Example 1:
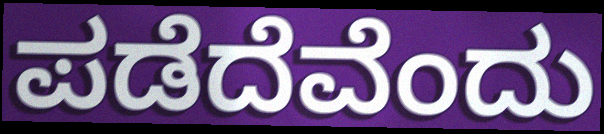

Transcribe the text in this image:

ಪಡೆದೆವೆಂದು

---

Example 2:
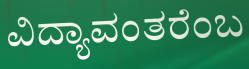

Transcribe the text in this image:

ವಿದ್ಯಾವಂತರೆಂಬ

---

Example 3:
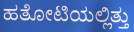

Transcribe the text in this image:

ಹತೋಟಿಯಲ್ಲಿತ್ತು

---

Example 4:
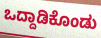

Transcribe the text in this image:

ಒದ್ದಾಡಿಕೊಂಡು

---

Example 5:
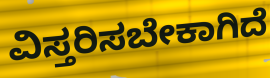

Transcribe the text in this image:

ವಿಸ್ತರಿಸಬೇಕಾಗಿದೆ